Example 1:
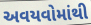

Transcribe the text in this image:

અવયવોમાંથી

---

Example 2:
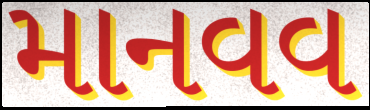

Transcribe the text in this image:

માનવવ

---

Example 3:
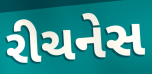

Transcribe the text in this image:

રીચનેસ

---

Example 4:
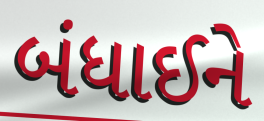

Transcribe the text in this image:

બંધાઈને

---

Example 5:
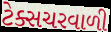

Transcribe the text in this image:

ટેક્સચરવાળી